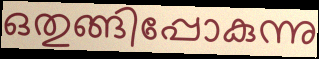
ഒതുങ്ങിപ്പോകുന്നു